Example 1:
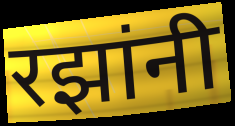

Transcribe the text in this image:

रझांनी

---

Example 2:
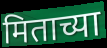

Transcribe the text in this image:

मिताच्या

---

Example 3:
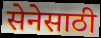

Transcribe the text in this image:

सेनेसाठी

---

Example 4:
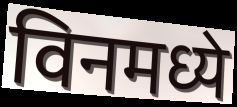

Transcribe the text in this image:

विनमध्ये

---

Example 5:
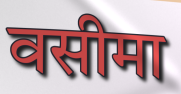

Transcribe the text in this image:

वसीमा